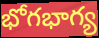
భోగభాగ్య